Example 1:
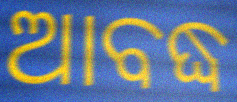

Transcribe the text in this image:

ଆବଦ୍ଧ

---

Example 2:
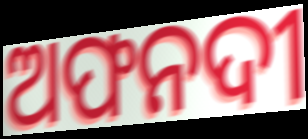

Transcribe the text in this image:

ଅଫନଦୀ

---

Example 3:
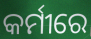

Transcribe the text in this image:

କର୍ମୀରେ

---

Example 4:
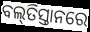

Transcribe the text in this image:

ବଲ୍‌ତିସ୍ତାନରେ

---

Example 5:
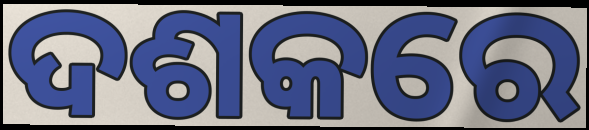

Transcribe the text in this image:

ଦଶକରେ